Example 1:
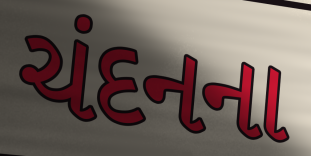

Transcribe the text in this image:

ચંદનના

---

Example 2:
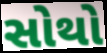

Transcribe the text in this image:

સોથો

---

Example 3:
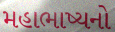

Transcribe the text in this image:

મહાભાષ્યનો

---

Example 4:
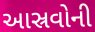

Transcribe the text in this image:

આસ્રવોની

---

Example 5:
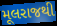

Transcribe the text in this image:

મૂલરાજથી